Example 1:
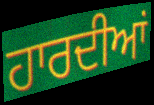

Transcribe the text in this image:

ਹਾਰਦੀਆਂ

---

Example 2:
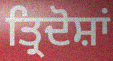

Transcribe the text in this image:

ਤ੍ਰਿਦੋਸ਼ਾਂ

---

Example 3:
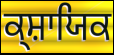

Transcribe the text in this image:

ਕ੍ਸ਼ਾਯਿਕ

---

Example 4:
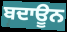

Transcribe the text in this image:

ਬਦਾਊਨ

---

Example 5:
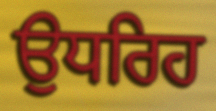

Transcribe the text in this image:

ਉਧਰਿਹ